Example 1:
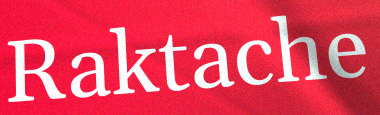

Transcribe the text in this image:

Raktache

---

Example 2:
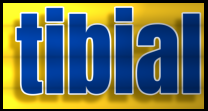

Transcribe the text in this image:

tibial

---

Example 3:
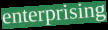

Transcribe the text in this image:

enterprising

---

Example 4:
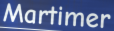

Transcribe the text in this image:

Martimer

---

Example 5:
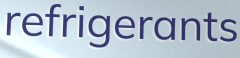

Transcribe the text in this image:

refrigerants